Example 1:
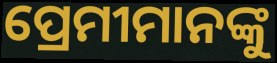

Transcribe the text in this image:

ପ୍ରେମୀମାନଙ୍କୁ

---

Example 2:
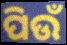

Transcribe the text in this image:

ପିଉଁ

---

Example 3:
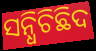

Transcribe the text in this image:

ସନ୍ଧିଚିଛିଦ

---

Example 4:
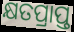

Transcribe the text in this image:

କ୍ଷତପ୍ରାପ୍ତ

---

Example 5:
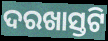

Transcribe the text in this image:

ଦରଖାସ୍ତଟି